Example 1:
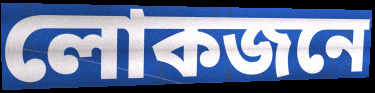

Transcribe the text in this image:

লোকজনে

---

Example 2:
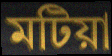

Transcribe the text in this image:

মটিয়া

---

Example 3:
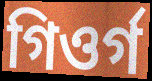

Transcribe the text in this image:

গিওৰ্গ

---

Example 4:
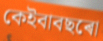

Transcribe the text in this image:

কেইবাবছৰো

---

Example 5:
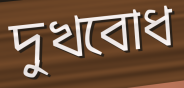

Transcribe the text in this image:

দুখবোধ